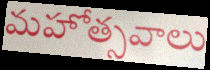
మహోత్సవాలు